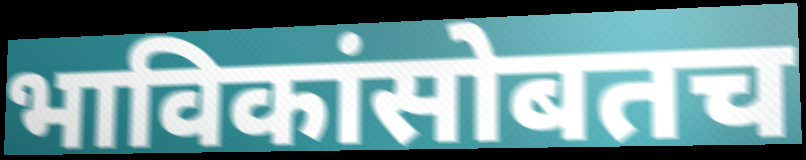
भाविकांसोबतच